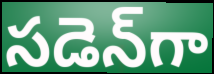
సడెన్‌గా